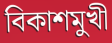
বিকাশমুখী